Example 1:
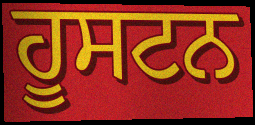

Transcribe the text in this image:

ਹੂਸਟਨ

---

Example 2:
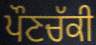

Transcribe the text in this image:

ਪੌਣਚੱਕੀ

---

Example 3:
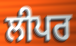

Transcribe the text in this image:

ਲੀਪਰ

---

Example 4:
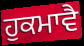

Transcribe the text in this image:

ਹੁਕਮਾਵੈ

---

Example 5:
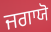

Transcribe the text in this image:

ਜਗਾਯੋ